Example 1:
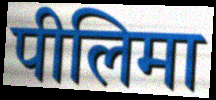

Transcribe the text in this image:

पीलिमा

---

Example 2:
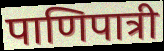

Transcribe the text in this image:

पाणिपात्री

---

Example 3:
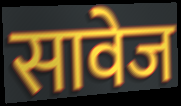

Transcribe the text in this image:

सावेज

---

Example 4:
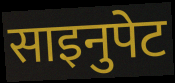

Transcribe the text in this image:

साइनुपेट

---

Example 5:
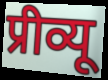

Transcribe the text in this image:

प्रीव्यू